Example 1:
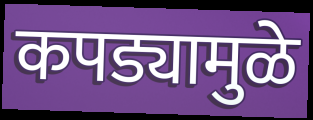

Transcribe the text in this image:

कपड्यामुळे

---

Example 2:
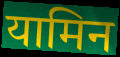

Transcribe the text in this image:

यामिन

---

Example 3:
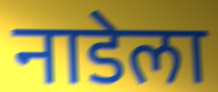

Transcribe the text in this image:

नाडेला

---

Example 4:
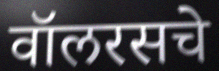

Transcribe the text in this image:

वॉलरसचे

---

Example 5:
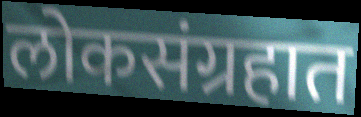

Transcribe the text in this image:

लोकसंग्रहात